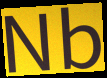
Nb